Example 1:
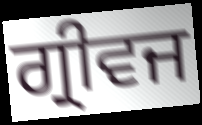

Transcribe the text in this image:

ਗ੍ਰੀਵਜ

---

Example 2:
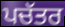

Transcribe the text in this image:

ਪਚੱਤਰ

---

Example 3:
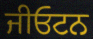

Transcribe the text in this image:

ਜੀਓਟਨ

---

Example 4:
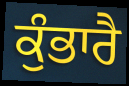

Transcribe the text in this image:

ਕੁੰਭਾਰੈ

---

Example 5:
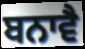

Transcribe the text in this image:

ਬਨਾਵੈ